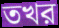
তখর